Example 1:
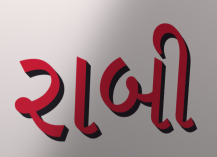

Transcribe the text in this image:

રાબી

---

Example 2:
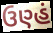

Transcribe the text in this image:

ઉણ્હં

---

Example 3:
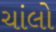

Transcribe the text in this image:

ચાંલો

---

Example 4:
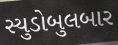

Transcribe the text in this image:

સ્યુડોબુલબાર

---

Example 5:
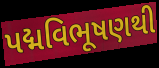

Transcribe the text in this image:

પદ્મવિભૂષણથી